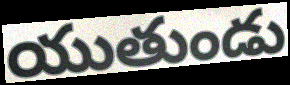
యుతుండు